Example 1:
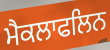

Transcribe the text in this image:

ਮੈਕਲਾਫਲਿਨ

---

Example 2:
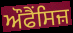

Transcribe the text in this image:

ਔਫੈਂਸਿਜ਼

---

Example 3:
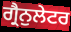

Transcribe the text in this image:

ਗ੍ਰੈਨੁਲੇਟਰ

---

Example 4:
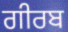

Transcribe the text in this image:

ਗੀਰਬ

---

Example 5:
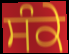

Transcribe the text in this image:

ਸੰਕੇ